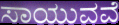
ಸಾಯುವವೆ